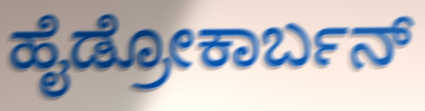
ಹೈಡ್ರೋಕಾರ್ಬನ್